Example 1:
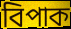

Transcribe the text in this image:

বিপাক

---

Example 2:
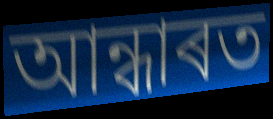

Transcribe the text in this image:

আন্ধাৰত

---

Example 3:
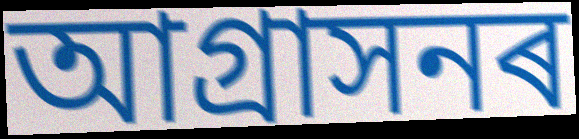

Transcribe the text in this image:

আগ্ৰাসনৰ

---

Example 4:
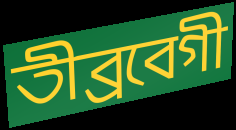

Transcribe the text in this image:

তীব্ৰবেগী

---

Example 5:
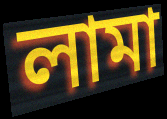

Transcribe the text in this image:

লামা